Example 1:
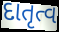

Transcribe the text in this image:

દાતૃત્વ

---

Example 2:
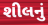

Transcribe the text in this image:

શીલનું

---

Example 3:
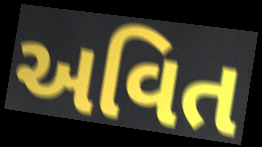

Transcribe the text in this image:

અવિત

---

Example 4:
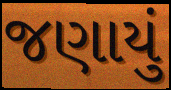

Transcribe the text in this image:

જણાયું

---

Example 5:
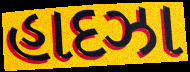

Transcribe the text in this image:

હાદઝા